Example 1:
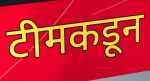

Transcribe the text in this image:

टीमकडून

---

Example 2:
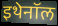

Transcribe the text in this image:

इथेनॉल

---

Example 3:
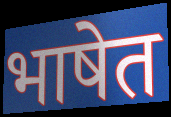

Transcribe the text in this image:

भाषेत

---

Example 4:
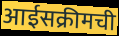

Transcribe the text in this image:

आईसक्रीमची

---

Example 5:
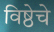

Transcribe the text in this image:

विष्ठेचे